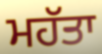
ਮਹੱਤਾ